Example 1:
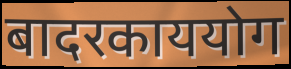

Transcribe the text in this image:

बादरकाययोग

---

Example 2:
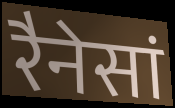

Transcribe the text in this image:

रैनेसां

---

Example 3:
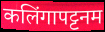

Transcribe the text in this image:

कलिंगापट्टनम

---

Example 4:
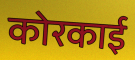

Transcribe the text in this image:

कोरकाई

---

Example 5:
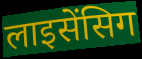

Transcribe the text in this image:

लाइसेंसिग